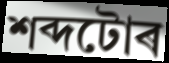
শব্দটোৰ